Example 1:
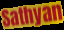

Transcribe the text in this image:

Sathyan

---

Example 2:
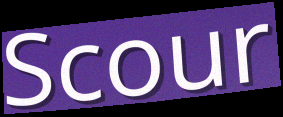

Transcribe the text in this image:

Scour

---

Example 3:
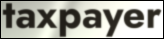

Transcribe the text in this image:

taxpayer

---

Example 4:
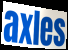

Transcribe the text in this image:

axles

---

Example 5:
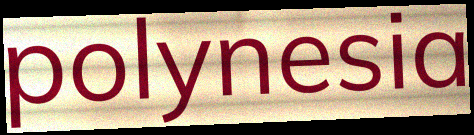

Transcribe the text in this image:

polynesia